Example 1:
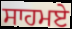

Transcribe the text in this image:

ਸਾਹਮਏ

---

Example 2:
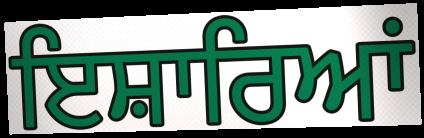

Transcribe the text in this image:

ਇਸ਼ਾਰਿਆਂ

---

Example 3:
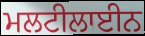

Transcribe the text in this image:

ਮਲਟੀਲਾਈਨ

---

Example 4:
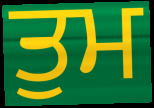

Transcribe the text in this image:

ਤੁਮ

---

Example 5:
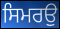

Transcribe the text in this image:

ਸਿਮਰਉ